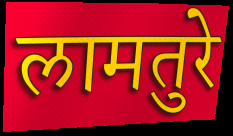
लामतुरे